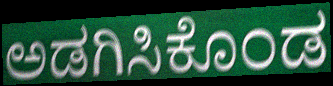
ಅಡಗಿಸಿಕೊಂಡ